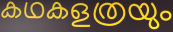
കഥകളത്രയും